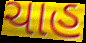
ચાહ